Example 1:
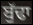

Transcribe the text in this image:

ਬੁੱਢਾ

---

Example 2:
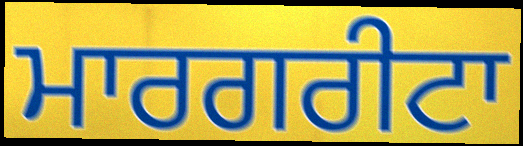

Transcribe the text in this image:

ਮਾਰਗਰੀਟਾ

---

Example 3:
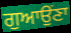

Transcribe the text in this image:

ਗੁਆਉਂਣਾ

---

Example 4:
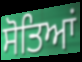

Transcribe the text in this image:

ਸੋਤਿਆਂ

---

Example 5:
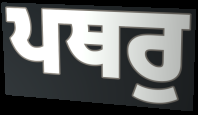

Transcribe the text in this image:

ਪਥਰੁ